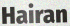
Hairan